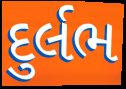
દુર્લભ